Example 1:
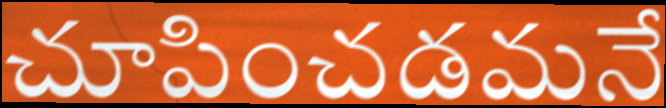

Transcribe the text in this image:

చూపించడమనే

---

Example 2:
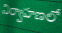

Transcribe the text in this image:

నిర్వాహణలో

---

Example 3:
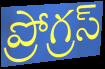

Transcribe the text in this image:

ప్రోగ్రస్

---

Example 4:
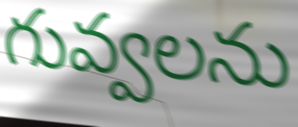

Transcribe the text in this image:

గువ్వలను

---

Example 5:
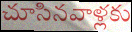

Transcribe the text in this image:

చూసినవాళ్లకు